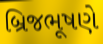
બ્રિજભૂષણે